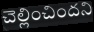
చెల్లించిందని